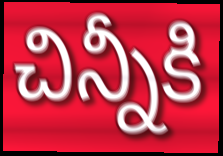
చిన్నీకి